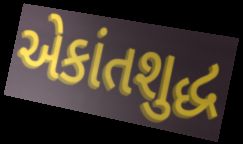
એકાંતશુદ્ધ